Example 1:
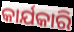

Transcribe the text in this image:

କାର୍ଯକାରି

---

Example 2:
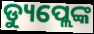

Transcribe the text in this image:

ଡ୍ୟୁପ୍ଲେଙ୍କ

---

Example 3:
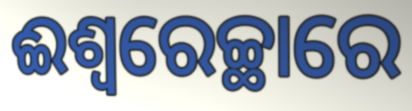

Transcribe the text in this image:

ଈଶ୍ୱରେଚ୍ଛାରେ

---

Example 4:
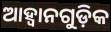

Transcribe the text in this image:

ଆହ୍ବାନଗୁଡ଼ିକ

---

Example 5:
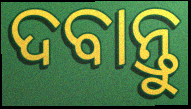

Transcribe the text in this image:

ଦବାନ୍ତୁ